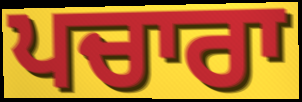
ਪਚਾਰਾ